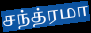
சந்த்ரமா